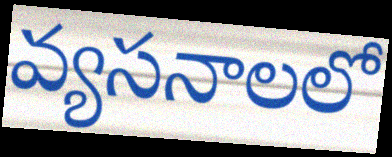
వ్యసనాలలో